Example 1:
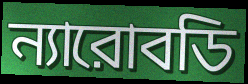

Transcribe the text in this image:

ন্যারোবডি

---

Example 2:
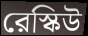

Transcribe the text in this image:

রেস্কিউ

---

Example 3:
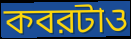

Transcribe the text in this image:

কবরটাও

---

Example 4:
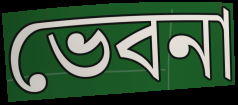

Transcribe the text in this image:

ভেবনা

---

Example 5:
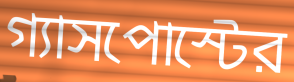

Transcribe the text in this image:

গ্যাসপোস্টের